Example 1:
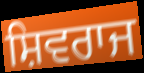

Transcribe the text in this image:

ਸ਼ਿਵਰਾਜ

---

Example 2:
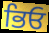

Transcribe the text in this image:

ਭਿਓ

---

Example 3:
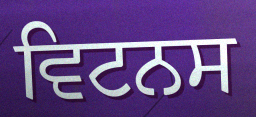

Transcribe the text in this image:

ਵਿਟਨਸ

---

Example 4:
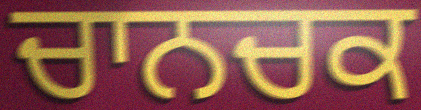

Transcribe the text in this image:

ਚਾਨਚਕ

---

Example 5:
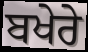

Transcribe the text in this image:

ਬਖੇਰੇ